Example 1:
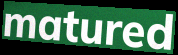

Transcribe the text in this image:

matured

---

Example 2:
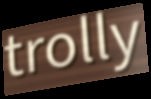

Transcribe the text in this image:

trolly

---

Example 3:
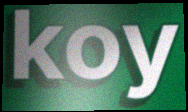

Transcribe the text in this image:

koy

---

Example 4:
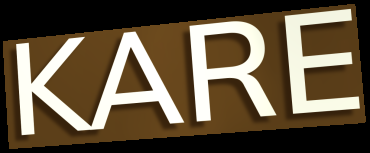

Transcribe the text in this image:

KARE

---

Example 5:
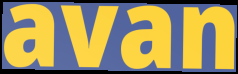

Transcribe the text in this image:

avan